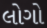
લોગો